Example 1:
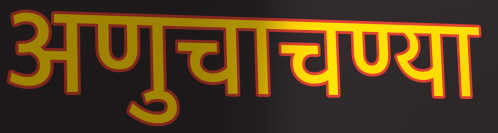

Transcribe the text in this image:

अणुचाचण्या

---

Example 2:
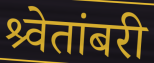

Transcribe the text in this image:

श्र्वेतांबरी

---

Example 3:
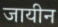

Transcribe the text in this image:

जायीन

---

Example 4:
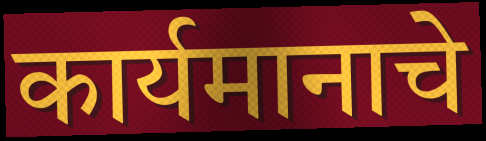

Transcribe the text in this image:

कार्यमानाचे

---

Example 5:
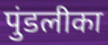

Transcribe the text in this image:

पुंडलीका